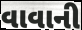
વાવાની